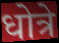
धोत्रे